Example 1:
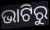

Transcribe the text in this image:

ଭାଟିରୁ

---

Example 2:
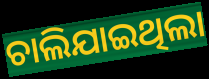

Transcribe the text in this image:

ଚାଲିଯାଇଥିଲା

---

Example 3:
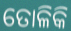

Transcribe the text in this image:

ତୋଳିକି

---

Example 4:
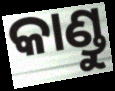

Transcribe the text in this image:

କାଣ୍ଡୁ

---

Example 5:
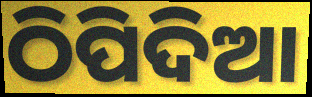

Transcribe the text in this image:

ଠିପିଦିଆ